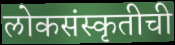
लोकसंस्कृतीची